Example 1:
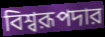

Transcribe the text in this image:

বিশ্বরূপদার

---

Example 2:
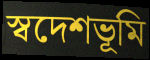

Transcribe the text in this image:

স্বদেশভূমি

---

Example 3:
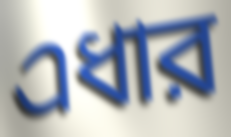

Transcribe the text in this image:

এধার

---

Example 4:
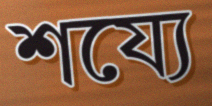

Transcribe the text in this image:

শয্যে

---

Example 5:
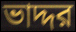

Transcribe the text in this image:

ভাদ্দর